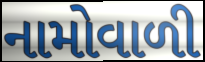
નામોવાળી